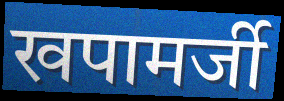
खपामर्जी